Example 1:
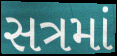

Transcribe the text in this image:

સત્રમાં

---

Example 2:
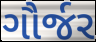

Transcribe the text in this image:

ગૌર્જર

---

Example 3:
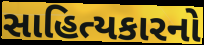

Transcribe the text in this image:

સાહિત્યકારનો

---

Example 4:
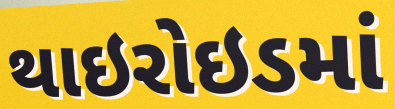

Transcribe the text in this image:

થાઇરોઇડમાં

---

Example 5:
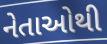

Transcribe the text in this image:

નેતાઓથી